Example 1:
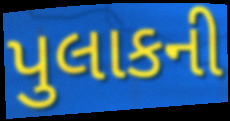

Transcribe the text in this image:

પુલાકની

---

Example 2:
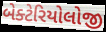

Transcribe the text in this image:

બેક્ટેરિયોલોજી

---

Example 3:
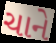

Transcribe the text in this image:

ચાને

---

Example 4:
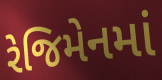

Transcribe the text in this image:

રેજિમેનમાં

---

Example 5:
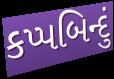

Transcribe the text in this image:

કપ્પબિન્દું